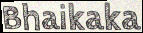
Bhaikaka